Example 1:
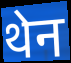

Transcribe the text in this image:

थेन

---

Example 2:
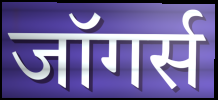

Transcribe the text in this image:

जॉगर्स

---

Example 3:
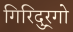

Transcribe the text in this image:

गिरिदुर्गो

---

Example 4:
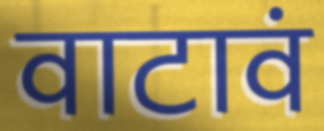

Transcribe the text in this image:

वाटावं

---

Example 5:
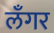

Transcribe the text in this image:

लँगर